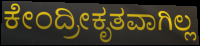
ಕೇಂದ್ರೀಕೃತವಾಗಿಲ್ಲ